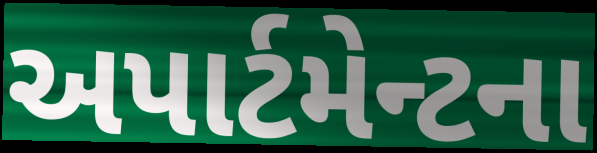
અપાર્ટમેન્ટના